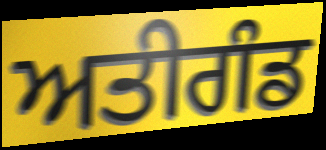
ਅਤੀਗੰਡ